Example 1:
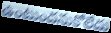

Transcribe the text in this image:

ఉంటుందనుకోలేదు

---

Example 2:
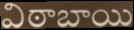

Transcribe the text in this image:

విఠాబాయి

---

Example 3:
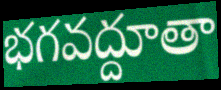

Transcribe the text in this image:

భగవద్దూతా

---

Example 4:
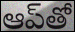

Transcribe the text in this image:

ఆప్‌తో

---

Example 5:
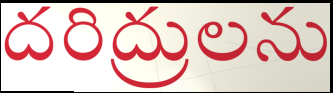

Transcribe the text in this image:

దరిద్రులను